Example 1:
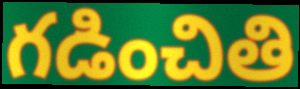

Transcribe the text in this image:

గడించితి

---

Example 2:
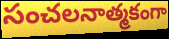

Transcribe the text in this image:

సంచలనాత్మకంగా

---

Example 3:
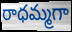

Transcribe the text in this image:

రాధమ్మగా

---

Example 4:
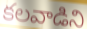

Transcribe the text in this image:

కలవాడిని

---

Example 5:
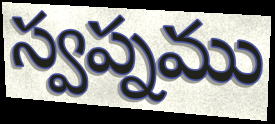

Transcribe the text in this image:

స్వప్నము